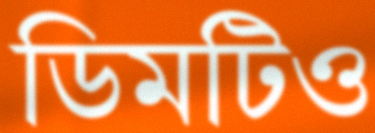
ডিমটিও